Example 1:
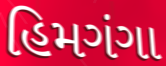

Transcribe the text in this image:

હિમગંગા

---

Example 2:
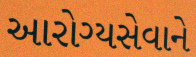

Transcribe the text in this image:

આરોગ્યસેવાને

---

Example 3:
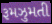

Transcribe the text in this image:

રૂમઝુમતી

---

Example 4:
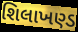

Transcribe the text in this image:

શિલાખણ્ડ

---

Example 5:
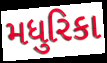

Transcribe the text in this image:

મધુરિકા